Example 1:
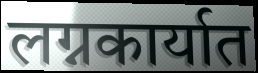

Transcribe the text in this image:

लग्नकार्यात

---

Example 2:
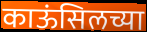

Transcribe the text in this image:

काऊंसिलच्या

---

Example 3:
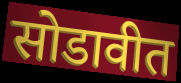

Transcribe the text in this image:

सोडावीत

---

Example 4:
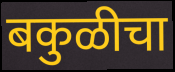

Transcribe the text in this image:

बकुळीचा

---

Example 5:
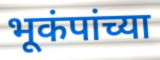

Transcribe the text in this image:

भूकंपांच्या